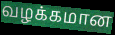
வழக்கமான